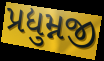
પ્રદ્યુમ્નજી